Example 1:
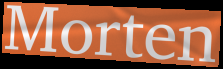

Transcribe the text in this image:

Morten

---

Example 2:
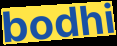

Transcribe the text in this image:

bodhi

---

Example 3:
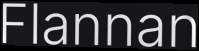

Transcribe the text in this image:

Flannan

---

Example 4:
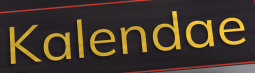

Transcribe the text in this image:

Kalendae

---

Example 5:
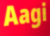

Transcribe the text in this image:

Aagi